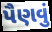
પૈણવું